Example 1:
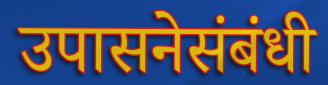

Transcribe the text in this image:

उपासनेसंबंधी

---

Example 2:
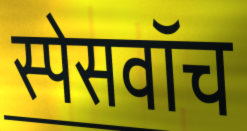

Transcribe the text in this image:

स्पेसवॉच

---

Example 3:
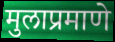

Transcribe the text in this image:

मुलाप्रमाणे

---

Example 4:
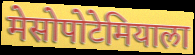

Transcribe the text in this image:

मेसोपोटेमियाला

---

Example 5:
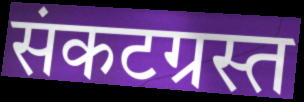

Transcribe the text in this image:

संकटग्रस्त